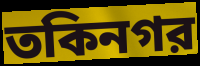
তকিনগর